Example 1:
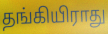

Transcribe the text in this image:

தங்கியிராது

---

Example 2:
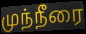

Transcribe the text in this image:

முந்நீரை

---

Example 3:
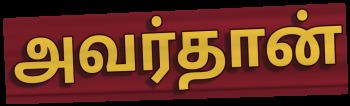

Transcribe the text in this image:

அவர்தான்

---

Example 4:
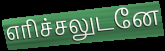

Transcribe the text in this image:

எரிச்சலுடனே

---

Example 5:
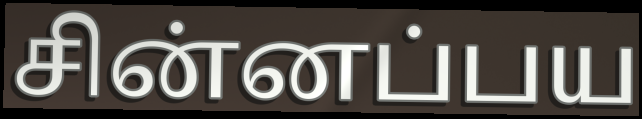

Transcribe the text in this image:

சின்னப்பய